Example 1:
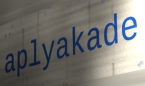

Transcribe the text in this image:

aplyakade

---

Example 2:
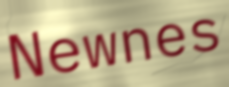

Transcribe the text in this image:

Newnes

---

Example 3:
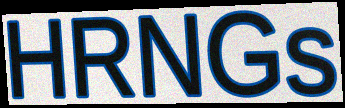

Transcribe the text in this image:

HRNGs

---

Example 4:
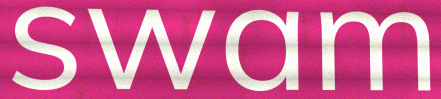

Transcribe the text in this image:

swam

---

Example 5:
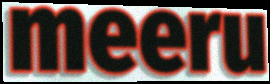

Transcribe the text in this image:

meeru